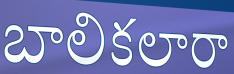
బాలికలారా